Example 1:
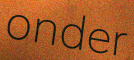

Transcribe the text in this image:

onder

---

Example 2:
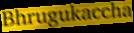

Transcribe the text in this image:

Bhrugukaccha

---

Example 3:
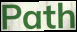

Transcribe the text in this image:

Path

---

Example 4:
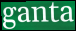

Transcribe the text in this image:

ganta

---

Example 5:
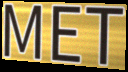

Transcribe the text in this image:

MET